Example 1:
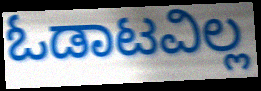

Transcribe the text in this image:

ಓಡಾಟವಿಲ್ಲ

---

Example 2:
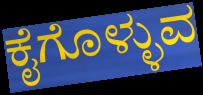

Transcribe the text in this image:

ಕೈಗೊಳ್ಳುವ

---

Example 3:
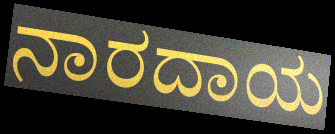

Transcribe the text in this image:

ನಾರದಾಯ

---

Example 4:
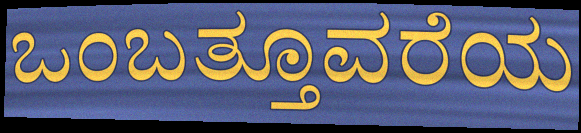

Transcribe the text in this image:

ಒಂಬತ್ತೂವರೆಯ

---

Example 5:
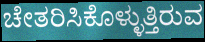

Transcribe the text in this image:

ಚೇತರಿಸಿಕೊಳ್ಳುತ್ತಿರುವ